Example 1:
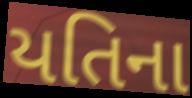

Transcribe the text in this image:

યતિના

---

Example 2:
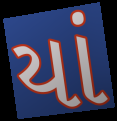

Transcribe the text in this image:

યાં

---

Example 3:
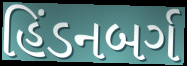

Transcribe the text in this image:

હિંડનબર્ગ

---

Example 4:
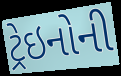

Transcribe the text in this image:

ટ્રેઇનોની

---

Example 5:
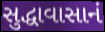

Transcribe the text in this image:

સુદ્ધાવાસાનં